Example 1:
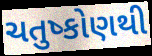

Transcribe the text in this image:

ચતુષ્કોણથી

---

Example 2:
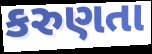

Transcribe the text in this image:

કરુણતા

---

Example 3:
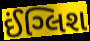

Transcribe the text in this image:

ઈંગ્લિશ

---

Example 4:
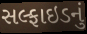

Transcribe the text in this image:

સલ્ફાઇડનું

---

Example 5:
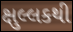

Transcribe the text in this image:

ક્ષુલ્લકથી